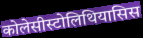
कोलेसीस्टोलिथियासिस